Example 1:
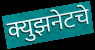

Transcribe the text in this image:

क्युझनेटचे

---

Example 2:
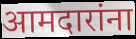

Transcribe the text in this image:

आमदारांना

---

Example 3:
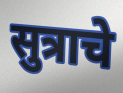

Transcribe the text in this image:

सुत्राचे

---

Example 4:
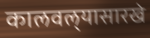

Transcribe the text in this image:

कालवल्यासारखे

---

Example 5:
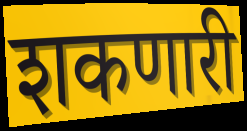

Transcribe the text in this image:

शकणारी